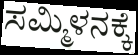
ಸಮ್ಮಿಳನಕ್ಕೆ